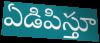
ఏడిపిస్తూ